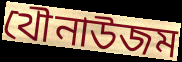
থৌনাউজম